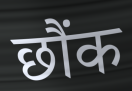
छौंक